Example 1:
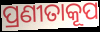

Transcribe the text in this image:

ପ୍ରଣୀତାକୂପ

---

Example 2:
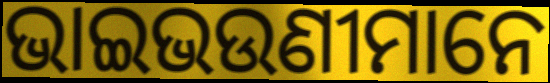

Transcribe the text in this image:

ଭାଇଭଉଣୀମାନେ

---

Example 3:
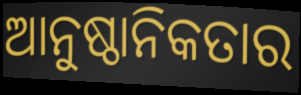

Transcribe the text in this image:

ଆନୁଷ୍ଠାନିକତାର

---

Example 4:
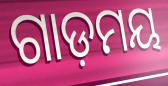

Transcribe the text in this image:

ଗାଡ଼ମୟ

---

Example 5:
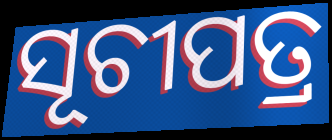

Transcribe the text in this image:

ସୂଚୀପତ୍ର